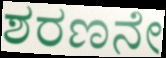
ಶರಣನೇ